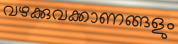
വഴക്കുവക്കാണങ്ങളും